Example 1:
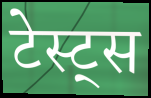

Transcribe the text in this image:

टेस्ट्स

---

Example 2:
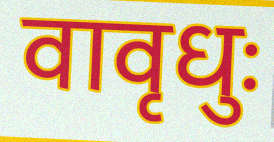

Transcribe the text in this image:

वावृधुः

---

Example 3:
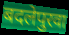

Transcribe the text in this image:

बदलेपुरवा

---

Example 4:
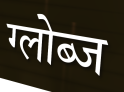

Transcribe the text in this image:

ग्लोब्ज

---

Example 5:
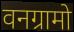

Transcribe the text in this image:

वनग्रामो